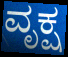
ವೃಕ್ಷ